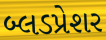
બ્લડપ્રેશર